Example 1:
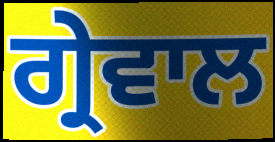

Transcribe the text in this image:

ਗ੍ਰੇਵਾਲ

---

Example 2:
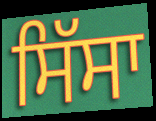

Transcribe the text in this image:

ਸਿੱਸਾ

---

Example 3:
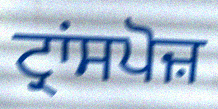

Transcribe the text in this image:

ਟ੍ਰਾਂਸਪੋਜ਼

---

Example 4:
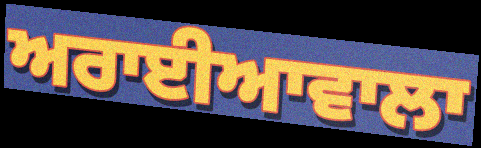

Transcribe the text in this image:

ਅਰਾਈਆਵਾਲਾ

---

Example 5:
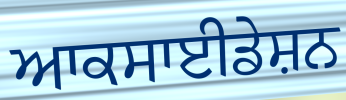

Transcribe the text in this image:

ਆਕਸਾਈਡੇਸ਼ਨ